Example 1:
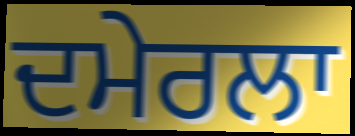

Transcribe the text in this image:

ਦਮੇਰਲਾ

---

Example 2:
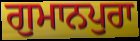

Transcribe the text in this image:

ਗੁਮਾਨਪੁਰਾ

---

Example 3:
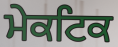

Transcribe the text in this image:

ਮੇਕਟਿਕ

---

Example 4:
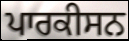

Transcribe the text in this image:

ਪਾਰਕੀਸਨ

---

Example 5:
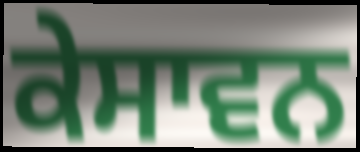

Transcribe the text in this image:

ਕੇਸਾਵਨ